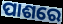
ପାଶରେ